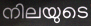
നിലയുടെ